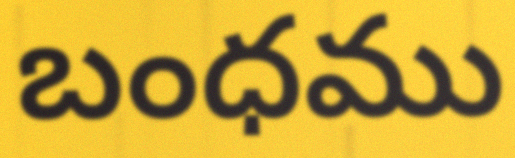
బంధము